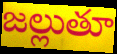
జల్లుతూ